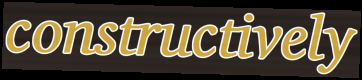
constructively